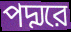
পদ্মরে